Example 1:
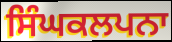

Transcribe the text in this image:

ਸਿੰਘਕਲਪਨਾ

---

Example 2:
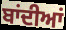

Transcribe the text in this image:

ਬਾਂਦੀਆਂ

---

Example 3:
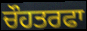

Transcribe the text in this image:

ਚੌਹਤਰਫਾ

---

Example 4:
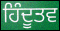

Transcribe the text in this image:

ਹਿੰਦੂਤਵ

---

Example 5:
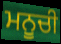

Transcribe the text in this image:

ਮਨੂਚੀ